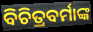
ବିଚିତ୍ରବର୍ମାଙ୍କ